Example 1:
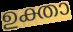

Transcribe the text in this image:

ഉക്താ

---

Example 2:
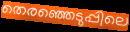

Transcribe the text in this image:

തെരഞ്ഞെടുപ്പിലെ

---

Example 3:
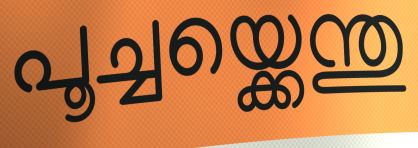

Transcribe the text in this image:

പൂച്ചയ്ക്കെന്തു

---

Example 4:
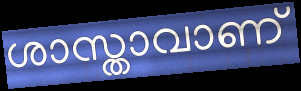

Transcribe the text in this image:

ശാസ്താവാണ്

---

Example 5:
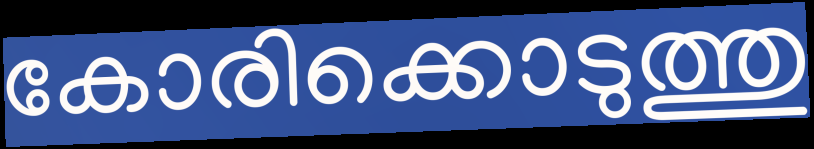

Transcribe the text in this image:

കോരിക്കൊടുത്തു